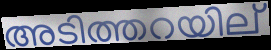
അടിത്തറയില്